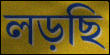
লড়ছি